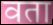
वता